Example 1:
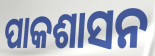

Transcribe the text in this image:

ପାକଶାସନ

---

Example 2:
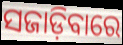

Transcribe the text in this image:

ସଜାଡ଼ିବାରେ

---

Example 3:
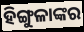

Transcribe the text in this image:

ହିଙ୍ଗୁଳାଙ୍କର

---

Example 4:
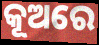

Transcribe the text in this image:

କୂଅରେ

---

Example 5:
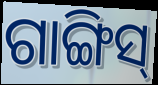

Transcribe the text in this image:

ଗାଙ୍ଗିସ୍